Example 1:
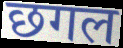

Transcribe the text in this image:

छगल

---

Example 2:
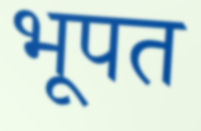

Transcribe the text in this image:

भूपत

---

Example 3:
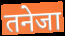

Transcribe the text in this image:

तनेजा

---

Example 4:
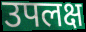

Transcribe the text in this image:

उपलक्ष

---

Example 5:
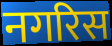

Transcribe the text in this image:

नगरिस